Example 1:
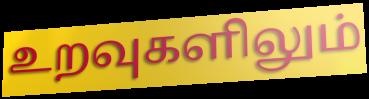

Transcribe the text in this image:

உறவுகளிலும்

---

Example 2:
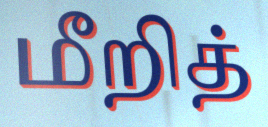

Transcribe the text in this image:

மீறித்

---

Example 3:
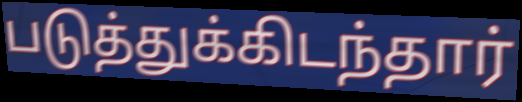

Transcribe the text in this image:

படுத்துக்கிடந்தார்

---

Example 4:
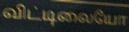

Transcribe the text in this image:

விட்டிலையோ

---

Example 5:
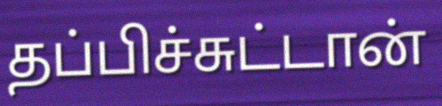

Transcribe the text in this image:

தப்பிச்சுட்டான்